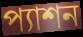
প্যাশন